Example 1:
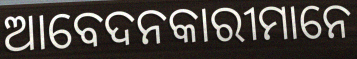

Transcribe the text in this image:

ଆବେଦନକାରୀମାନେ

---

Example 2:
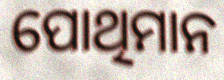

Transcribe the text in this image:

ପୋଥିମାନ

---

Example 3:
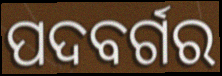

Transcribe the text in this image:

ପଦବର୍ଗର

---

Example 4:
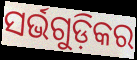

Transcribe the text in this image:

ସର୍ଭଗୁଡ଼ିକର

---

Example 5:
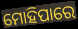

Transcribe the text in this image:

ମୋହିପାରେ